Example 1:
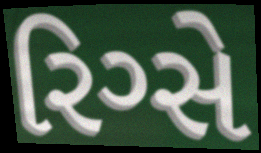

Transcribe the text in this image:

રિગ્સે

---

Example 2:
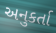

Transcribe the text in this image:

અનુકર્તા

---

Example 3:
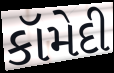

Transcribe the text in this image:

કૉમેદી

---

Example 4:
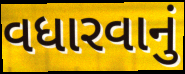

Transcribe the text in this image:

વધારવાનું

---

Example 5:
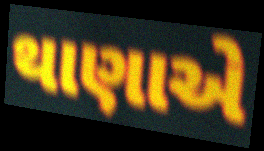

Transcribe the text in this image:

થાણાએ